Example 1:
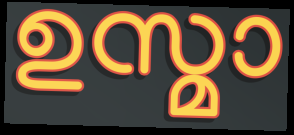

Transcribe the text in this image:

ഉസ്മാ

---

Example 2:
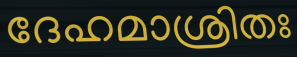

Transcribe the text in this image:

ദേഹമാശ്രിതഃ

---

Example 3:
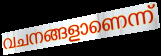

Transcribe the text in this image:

വചനങ്ങളാണെന്ന്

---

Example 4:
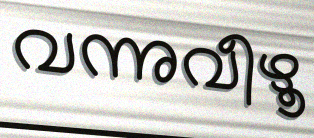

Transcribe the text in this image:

വന്നുവീഴൂ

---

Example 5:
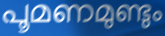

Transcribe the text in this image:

പൂമണമുണ്ടും